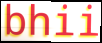
bhii